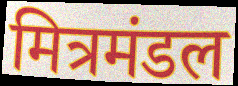
मित्रमंडल